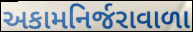
અકામનિર્જરાવાળા